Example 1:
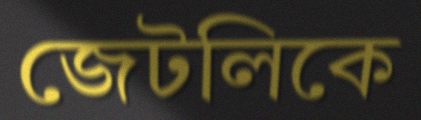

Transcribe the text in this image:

জেটলিকে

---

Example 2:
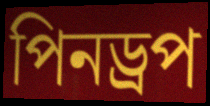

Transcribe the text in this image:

পিনড্রপ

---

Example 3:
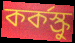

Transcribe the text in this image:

কর্কস্ক্রু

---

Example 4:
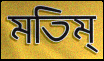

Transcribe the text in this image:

মতিম্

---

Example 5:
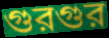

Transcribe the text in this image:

গুরগুর